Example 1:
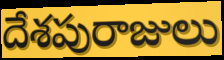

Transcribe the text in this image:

దేశపురాజులు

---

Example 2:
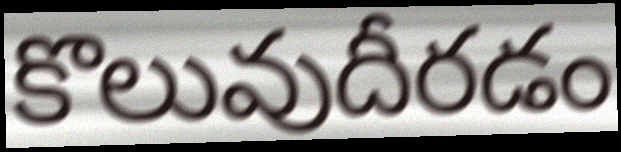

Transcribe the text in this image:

కొలువుదీరడం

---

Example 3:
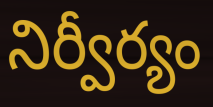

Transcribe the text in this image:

నిర్వీర్యం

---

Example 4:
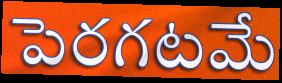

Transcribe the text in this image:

పెరగటమే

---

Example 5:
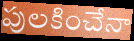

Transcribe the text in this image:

పులకించేనా